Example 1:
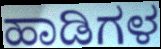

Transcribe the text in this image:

ಹಾಡಿಗಳ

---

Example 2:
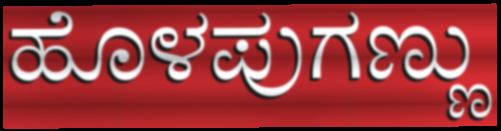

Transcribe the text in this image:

ಹೊಳಪುಗಣ್ಣು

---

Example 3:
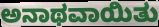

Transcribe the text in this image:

ಅನಾಥವಾಯಿತು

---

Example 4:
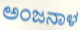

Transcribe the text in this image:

ಅಂಜನಾಳ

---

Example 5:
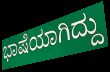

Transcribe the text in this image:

ಭಾಷೆಯಾಗಿದ್ದು